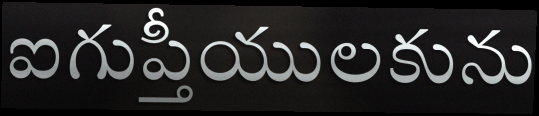
ఐగుప్తీయులకును